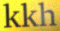
kkh